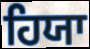
ਹਿਯਾ